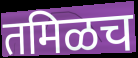
तमिळच